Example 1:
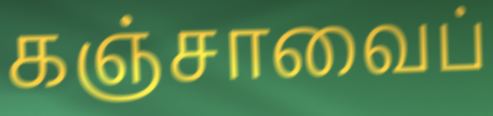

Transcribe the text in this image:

கஞ்சாவைப்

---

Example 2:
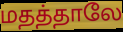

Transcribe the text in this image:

மதத்தாலே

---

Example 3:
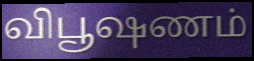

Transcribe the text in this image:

விபூஷணம்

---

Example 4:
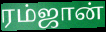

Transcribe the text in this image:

ரம்ஜான்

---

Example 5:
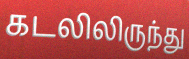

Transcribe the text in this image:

கடலிலிருந்து